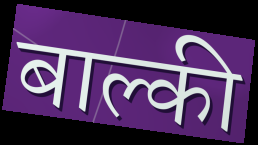
बाल्की